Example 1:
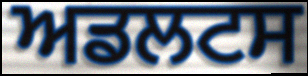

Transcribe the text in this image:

ਅਡਲਟਸ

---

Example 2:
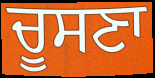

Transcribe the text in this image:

ਚੂਸਣਾ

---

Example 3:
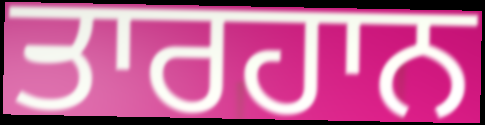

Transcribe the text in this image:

ਤਾਰਹਾਨ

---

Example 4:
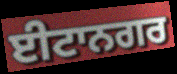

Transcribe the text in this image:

ਈਟਾਨਗਰ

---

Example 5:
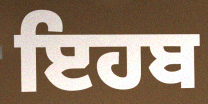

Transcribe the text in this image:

ਇਹਬ